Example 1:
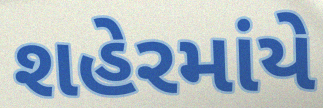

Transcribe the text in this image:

શહેરમાંયે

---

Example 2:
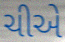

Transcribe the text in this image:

ચીએ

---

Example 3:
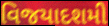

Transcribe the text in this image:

વિજયાદશમી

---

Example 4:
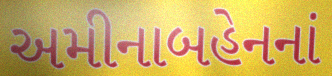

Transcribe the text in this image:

અમીનાબહેનનાં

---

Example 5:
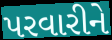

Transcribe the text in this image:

પરવારીને